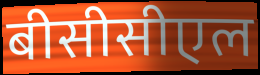
बीसीसीएल